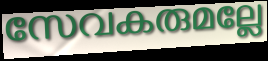
സേവകരുമല്ലേ